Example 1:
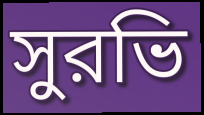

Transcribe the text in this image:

সুরভি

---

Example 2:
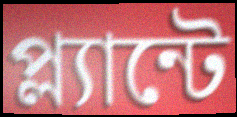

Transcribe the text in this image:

প্ল্যান্টে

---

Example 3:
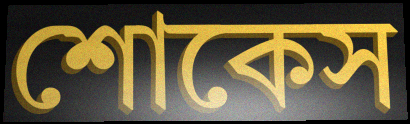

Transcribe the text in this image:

শোকেস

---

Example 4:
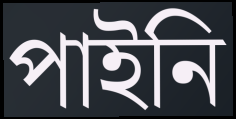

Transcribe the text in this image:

পাইনি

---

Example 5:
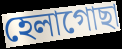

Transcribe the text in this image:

হেলাগোছা